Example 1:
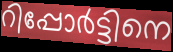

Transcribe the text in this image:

റിപ്പോർട്ടിനെ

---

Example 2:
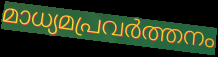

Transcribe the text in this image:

മാധ്യമപ്രവർത്തനം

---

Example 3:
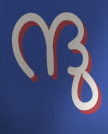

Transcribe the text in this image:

ന്ദു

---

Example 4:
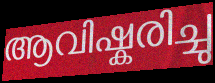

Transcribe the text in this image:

ആവിഷ്കരിച്ചു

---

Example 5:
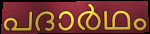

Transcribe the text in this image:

പദാർഥം